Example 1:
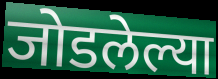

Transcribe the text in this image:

जोडलेल्या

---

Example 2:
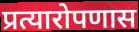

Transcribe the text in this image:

प्रत्यारोपणास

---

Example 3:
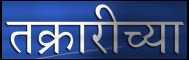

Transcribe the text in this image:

तक्रारीच्या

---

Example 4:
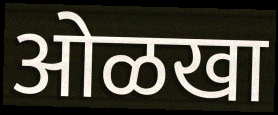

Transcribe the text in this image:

ओळखा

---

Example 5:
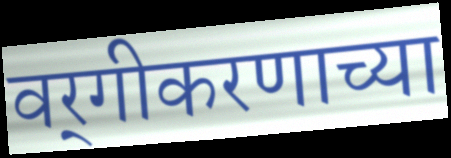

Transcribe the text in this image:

वर्गीकरणाच्या